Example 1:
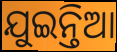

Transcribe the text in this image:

ଯୁଇନ୍ତିଆ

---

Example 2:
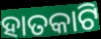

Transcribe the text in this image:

ହାତକାଟି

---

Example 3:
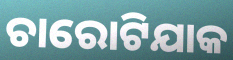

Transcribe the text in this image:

ଚାରୋଟିଯାକ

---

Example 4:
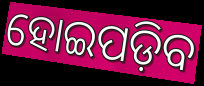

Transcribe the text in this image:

ହୋଇପଡ଼ିବ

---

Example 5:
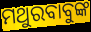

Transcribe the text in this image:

ମଥୁରବାବୁଙ୍କ